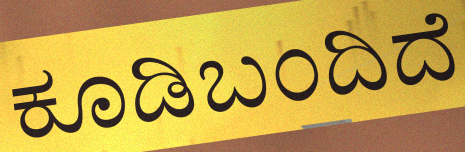
ಕೂಡಿಬಂದಿದೆ